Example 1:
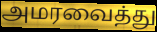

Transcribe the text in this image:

அமரவைத்து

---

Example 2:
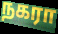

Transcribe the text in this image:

நகரா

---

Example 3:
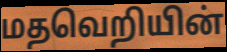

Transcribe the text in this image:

மதவெறியின்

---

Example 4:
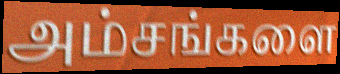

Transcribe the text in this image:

அம்சங்களை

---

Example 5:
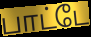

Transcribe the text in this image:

பாட்டே